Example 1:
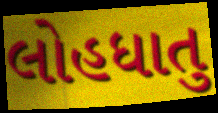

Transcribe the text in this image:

લોહધાતુ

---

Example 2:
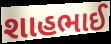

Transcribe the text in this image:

શાહભાઈ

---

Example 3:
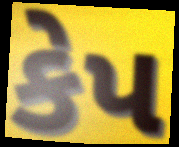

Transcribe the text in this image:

કેપ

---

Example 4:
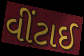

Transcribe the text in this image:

વીંટાઈ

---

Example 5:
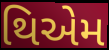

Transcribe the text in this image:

થિએમ